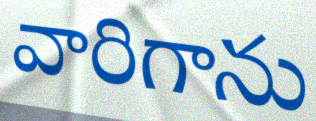
వారిగాను